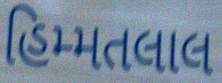
હિમ્મતલાલ